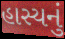
હાસ્યનું